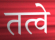
तत्वे